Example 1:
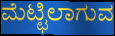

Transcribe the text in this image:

ಮೆಟ್ಟಿಲಾಗುವ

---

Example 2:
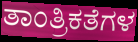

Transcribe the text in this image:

ತಾಂತ್ರಿಕತೆಗಳ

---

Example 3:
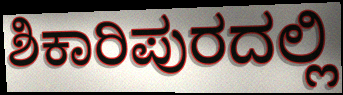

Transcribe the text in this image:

ಶಿಕಾರಿಪುರದಲ್ಲಿ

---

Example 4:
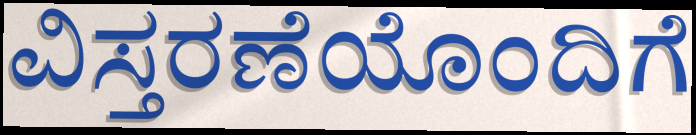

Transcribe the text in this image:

ವಿಸ್ತರಣೆಯೊಂದಿಗೆ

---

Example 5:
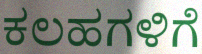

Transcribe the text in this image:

ಕಲಹಗಳಿಗೆ